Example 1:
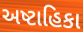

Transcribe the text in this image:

અષ્ટાહિકા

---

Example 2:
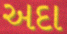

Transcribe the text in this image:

અદા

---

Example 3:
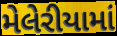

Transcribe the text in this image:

મેલેરીયામાં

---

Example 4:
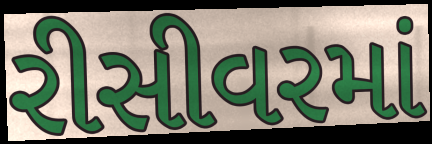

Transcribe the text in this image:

રીસીવરમાં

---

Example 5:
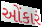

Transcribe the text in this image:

ઓંકારં